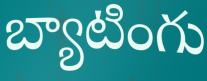
బ్యాటింగు